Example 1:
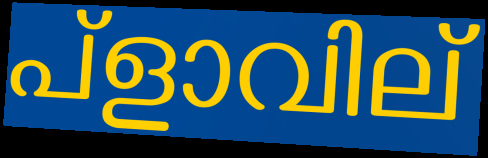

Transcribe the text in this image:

പ്ളാവില്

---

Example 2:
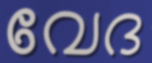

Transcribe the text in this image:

വേദ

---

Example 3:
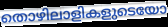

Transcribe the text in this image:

തൊഴിലാളികളുടെയോ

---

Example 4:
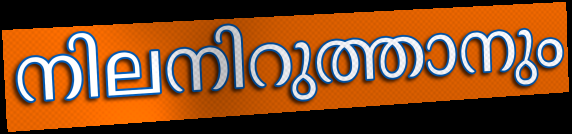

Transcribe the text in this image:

നിലനിറുത്താനും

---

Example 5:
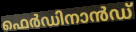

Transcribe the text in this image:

ഫെർഡിനാൻഡ്